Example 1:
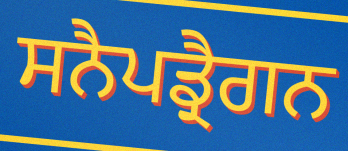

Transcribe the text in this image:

ਸਨੈਪਡ੍ਰੈਗਨ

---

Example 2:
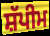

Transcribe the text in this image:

ਸ਼ੱਪੀਮ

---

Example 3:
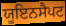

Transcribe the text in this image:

ਯੂਇਨਸੈਪਟ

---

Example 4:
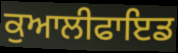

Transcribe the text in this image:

ਕੁਆਲੀਫਾਇਡ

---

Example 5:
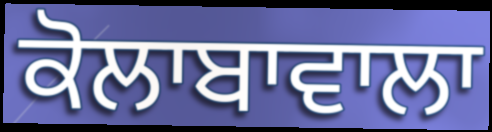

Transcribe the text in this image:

ਕੋਲਾਬਾਵਾਲਾ